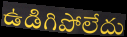
ఉడిగిపోలేదు